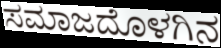
ಸಮಾಜದೊಳಗಿನ